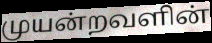
முயன்றவளின்